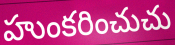
హుంకరించుచు